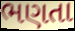
ભણતા